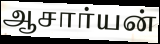
ஆசார்யன்